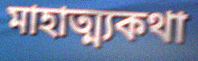
মাহাত্ম্যকথা